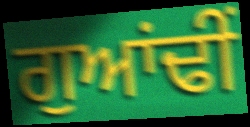
ਗੁਆਂਢੀਂ